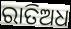
ରାତିଅଧ